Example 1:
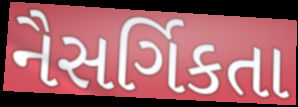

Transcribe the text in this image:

નૈસર્ગિકતા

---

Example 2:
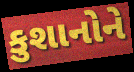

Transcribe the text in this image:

કુશાનોને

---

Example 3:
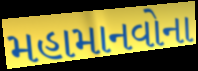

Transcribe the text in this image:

મહામાનવોના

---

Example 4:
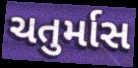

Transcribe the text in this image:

ચતુર્માસ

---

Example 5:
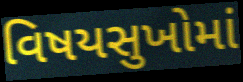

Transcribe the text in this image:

વિષયસુખોમાં